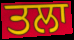
ਤਲਾ